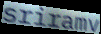
sriramv